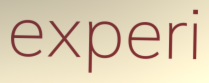
experi